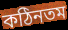
কঠিনতম